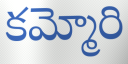
కమ్మోరి